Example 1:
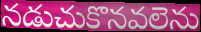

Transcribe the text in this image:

నడుచుకొనవలెను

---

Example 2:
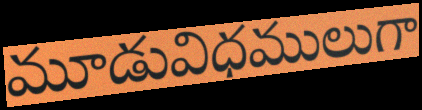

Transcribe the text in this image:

మూడువిధములుగా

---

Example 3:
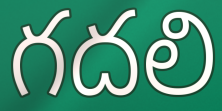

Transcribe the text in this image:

గదలి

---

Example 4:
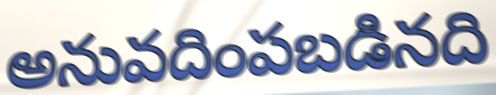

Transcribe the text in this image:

అనువదింపబడినది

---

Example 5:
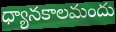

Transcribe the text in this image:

ధ్యానకాలమందు